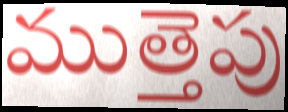
ముత్తెపు